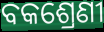
ବକଶ୍ରେଣୀ